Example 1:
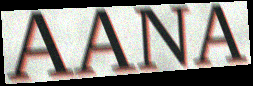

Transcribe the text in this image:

AANA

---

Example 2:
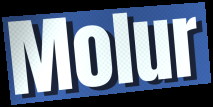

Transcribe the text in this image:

Molur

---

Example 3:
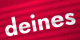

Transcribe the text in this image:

deines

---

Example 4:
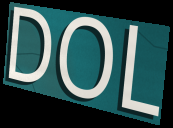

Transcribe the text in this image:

DOL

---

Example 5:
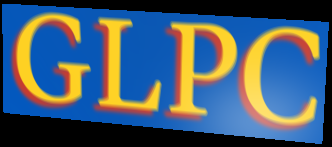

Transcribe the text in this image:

GLPC